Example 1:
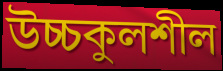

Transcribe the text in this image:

উচ্চকুলশীল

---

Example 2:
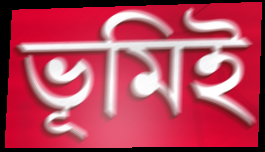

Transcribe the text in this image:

ভূমিই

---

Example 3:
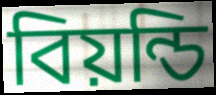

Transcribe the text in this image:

বিয়ন্ডি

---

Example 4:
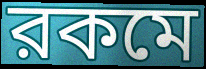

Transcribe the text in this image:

রকমে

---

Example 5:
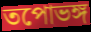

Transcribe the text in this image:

তপোভঙ্গ